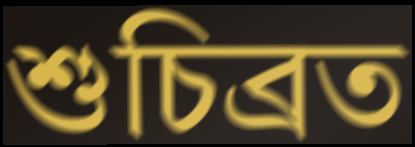
শুচিব্রত